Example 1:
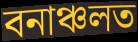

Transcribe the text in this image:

বনাঞ্চলত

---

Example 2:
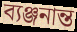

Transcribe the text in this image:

ব্যঞ্জনান্ত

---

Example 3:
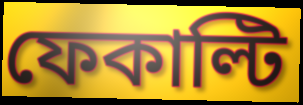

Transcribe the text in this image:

ফেকাল্টি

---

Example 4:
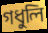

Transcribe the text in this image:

গধুলি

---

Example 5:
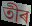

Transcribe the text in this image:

তীৰ